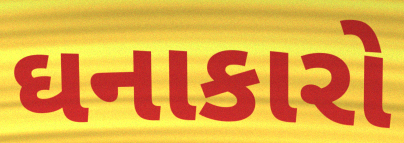
ઘનાકારો